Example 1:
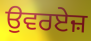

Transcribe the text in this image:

ਉਵਰਏਜ਼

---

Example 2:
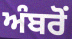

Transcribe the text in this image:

ਅੰਬਰੋਂ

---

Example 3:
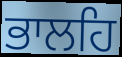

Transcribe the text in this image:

ਭਾਲਹਿ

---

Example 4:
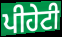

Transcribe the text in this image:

ਪੀਹੇਟੀ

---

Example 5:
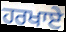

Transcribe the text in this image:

ਹਰਖਾਏ